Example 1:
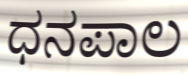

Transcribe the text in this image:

ಧನಪಾಲ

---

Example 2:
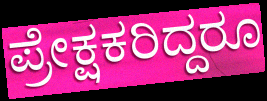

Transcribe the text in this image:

ಪ್ರೇಕ್ಷಕರಿದ್ದರೂ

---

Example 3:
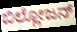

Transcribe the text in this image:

ಬಿಲ್ಲೋಜನ್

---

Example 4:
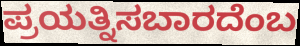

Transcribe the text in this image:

ಪ್ರಯತ್ನಿಸಬಾರದೆಂಬ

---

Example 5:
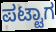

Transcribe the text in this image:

ಪಟ್ಟಾಗ